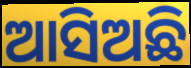
ଆସିଅଛି